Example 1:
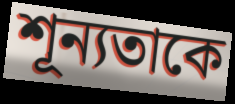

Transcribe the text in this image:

শূন্যতাকে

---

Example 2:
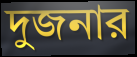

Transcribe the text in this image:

দুজনার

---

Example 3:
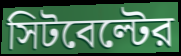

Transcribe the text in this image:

সিটবেল্টের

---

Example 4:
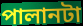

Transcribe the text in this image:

পালানটা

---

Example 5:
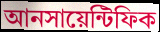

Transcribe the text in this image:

আনসায়েন্টিফিক